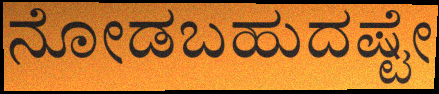
ನೋಡಬಹುದಷ್ಟೇ